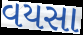
વયસા